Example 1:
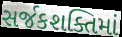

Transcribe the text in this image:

સર્જકશક્તિમાં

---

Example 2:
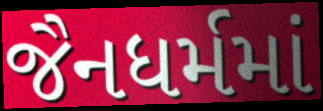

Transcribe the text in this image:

જૈનધર્મમાં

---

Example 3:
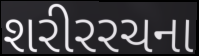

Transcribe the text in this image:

શરીરરચના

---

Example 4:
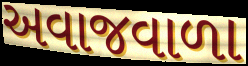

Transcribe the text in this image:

અવાજવાળા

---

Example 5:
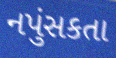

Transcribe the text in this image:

નપુંસકતા